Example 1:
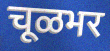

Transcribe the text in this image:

चूळभर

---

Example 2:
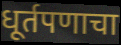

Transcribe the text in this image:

धूर्तपणाचा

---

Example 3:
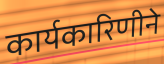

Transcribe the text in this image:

कार्यकारिणीने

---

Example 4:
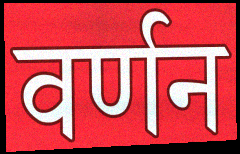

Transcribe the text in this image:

वर्णन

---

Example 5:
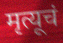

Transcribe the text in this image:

मृत्यूचं